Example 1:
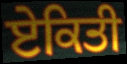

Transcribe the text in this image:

ਏਕਿਤੀ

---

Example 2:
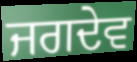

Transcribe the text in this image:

ਜਗਦੇਵ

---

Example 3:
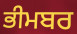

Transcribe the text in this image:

ਭੀਮਬਰ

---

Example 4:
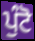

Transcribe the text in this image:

ਪੁੰਟੋ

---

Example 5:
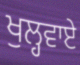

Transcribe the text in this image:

ਖੁਲ੍ਹਵਾਏ